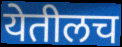
येतीलच